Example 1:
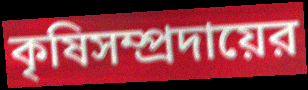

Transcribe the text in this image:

কৃষিসম্প্রদায়ের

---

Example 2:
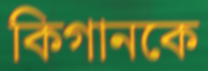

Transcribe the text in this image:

কিগানকে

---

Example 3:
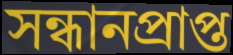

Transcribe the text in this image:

সন্ধানপ্রাপ্ত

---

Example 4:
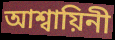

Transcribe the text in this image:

আশ্বায়িনী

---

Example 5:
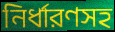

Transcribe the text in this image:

নির্ধারণসহ